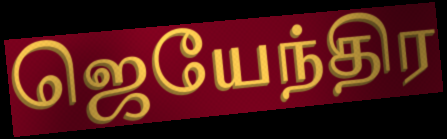
ஜெயேந்திர